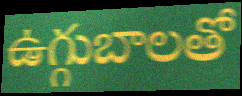
ఉగ్గుబాలతో